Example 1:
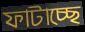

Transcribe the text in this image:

ফাটাচ্ছে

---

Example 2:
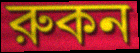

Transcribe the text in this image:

রুকন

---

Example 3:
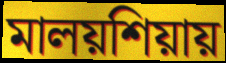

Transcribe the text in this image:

মালয়শিয়ায়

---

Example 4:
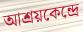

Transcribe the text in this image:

আশ্রয়কেন্দ্রে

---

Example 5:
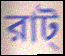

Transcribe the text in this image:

রাট্